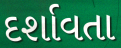
દર્શાવતા